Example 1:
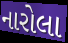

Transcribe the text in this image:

નારોલા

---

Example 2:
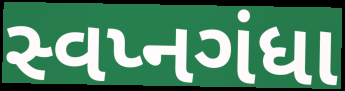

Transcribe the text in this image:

સ્વપ્નગંધા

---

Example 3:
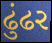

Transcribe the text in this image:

ઢુંઢર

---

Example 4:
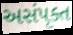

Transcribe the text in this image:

અસંપૃક્ત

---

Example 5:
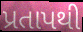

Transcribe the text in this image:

પ્રતાપથી